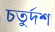
চতুর্দশ